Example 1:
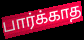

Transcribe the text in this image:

பார்க்காத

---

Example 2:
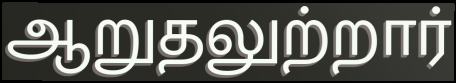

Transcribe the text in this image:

ஆறுதலுற்றார்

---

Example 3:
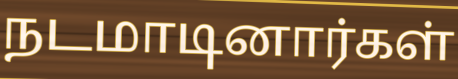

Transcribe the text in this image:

நடமாடினார்கள்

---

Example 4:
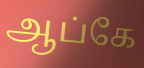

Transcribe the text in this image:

ஆப்கே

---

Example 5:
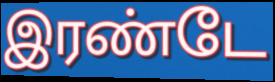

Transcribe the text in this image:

இரண்டே